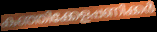
കുഞ്ഞിക്കേളപ്പണിക്കർ